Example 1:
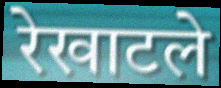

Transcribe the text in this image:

रेखाटले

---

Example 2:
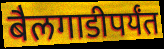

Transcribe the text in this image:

बैलगाडीपर्यंत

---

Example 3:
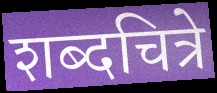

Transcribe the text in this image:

शब्दचित्रे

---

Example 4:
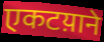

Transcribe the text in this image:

एकटय़ाने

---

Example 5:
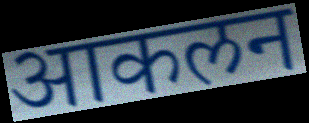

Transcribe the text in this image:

आकलन